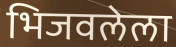
भिजवलेला